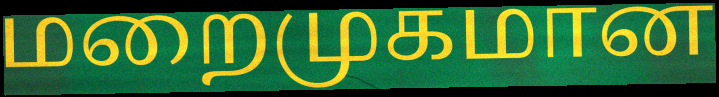
மறைமுகமான